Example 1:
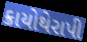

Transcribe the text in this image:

ક્રાયોથેરાપી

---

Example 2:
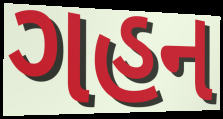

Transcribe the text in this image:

ગહન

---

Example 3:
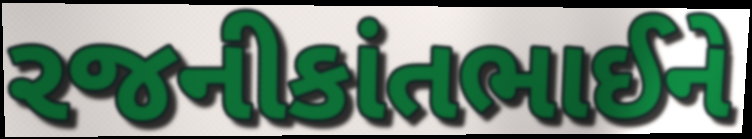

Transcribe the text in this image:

રજનીકાંતભાઈને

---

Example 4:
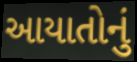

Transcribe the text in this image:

આયાતોનું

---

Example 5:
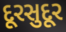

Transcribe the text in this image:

દૂરસુદૂર